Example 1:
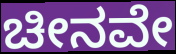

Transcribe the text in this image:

ಚೀನವೇ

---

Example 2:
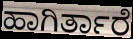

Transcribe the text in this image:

ಹಾಗಿರ್ತಾರೆ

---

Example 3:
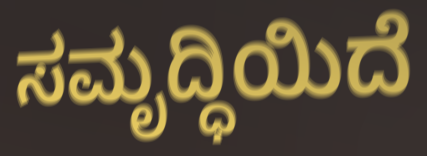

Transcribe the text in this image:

ಸಮೃದ್ಧಿಯಿದೆ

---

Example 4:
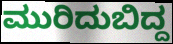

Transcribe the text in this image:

ಮುರಿದುಬಿದ್ದ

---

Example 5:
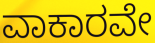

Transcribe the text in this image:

ವಾಕಾರವೇ